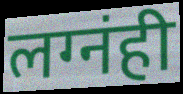
लग्नंही